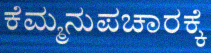
ಕೆಮ್ಮನುಪಚಾರಕ್ಕೆ